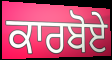
ਕਾਰਬੋਏ